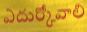
ఎదుర్కోవాలి